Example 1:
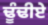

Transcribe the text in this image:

ਢੂੰਢੀਏ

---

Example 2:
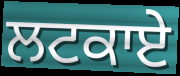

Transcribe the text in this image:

ਲਟਕਾਏ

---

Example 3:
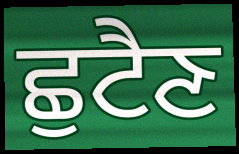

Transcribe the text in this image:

ਛੁਟੈਣ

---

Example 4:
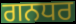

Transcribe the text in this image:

ਗਨਧਰ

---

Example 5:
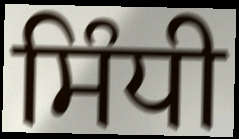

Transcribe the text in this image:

ਸਿੰਧੀ